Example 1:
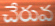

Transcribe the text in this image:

చేరువ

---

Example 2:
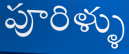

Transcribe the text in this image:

పూరిళ్ళు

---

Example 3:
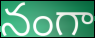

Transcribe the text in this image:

నంగా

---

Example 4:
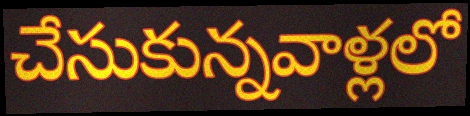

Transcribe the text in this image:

చేసుకున్నవాళ్లలో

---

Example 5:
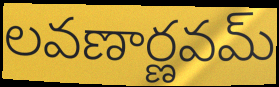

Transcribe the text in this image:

లవణార్ణవమ్